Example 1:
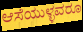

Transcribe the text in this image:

ಆಸೆಯುಳ್ಳವರೂ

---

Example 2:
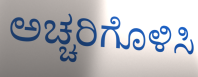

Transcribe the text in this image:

ಅಚ್ಚರಿಗೊಳಿಸಿ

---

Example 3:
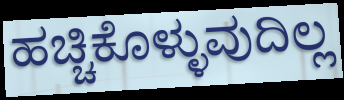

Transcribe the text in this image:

ಹಚ್ಚಿಕೊಳ್ಳುವುದಿಲ್ಲ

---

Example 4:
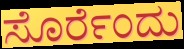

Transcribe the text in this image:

ಸೊರ್ರೆಂದು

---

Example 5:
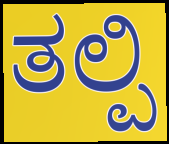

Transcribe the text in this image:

ತಲ್ಪಿ